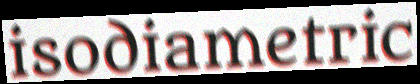
isodiametric